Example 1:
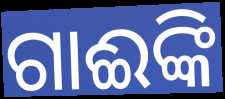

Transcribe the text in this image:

ଗାଈଙ୍କି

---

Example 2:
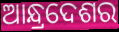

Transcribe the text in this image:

ଆନ୍ଧ୍ରଦେଶର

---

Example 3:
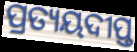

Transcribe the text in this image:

ପ୍ରତ୍ୟୟଦୀପ୍ତ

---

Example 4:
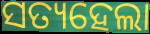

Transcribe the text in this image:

ସତ୍ୟହେଲା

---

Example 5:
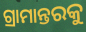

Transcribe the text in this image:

ଗ୍ରାମାନ୍ତରକୁ